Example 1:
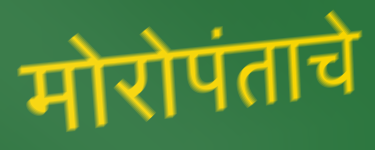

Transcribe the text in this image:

मोरोपंताचे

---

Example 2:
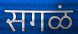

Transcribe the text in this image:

सगळं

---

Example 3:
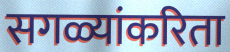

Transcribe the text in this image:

सगळ्यांकरिता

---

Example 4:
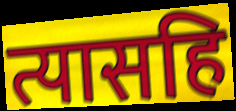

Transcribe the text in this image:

त्यासहि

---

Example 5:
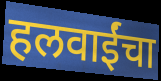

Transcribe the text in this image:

हलवाईंचा